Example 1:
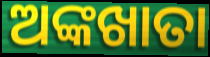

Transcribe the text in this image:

ଅଙ୍କଖାତା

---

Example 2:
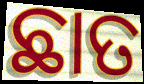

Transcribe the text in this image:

ଛାତ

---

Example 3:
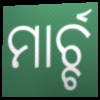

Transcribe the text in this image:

ମାର୍ଚ୍ଚ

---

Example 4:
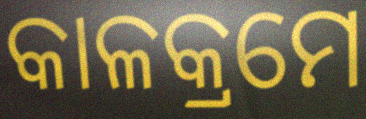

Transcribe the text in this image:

କାଳକ୍ରମେ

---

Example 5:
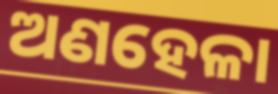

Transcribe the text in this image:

ଅଣହେଳା